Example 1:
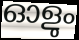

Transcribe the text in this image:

ഓളും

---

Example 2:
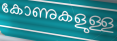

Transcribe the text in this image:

കോണുകളുള്ള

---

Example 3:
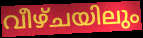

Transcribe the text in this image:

വീഴ്ചയിലും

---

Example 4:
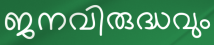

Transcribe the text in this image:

ജനവിരുദ്ധവും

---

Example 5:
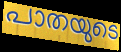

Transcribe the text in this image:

പാതയുടെ